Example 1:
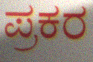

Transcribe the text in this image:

ಪ್ರಕರ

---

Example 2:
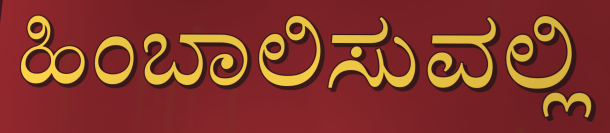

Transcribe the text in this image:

ಹಿಂಬಾಲಿಸುವಲ್ಲಿ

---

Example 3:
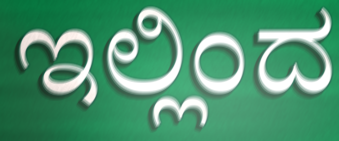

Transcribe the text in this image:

ಇಲ್ಲಿಂದ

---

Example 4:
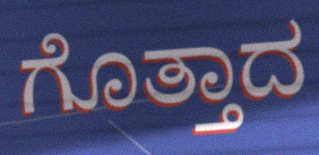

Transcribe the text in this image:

ಗೊತ್ತಾದ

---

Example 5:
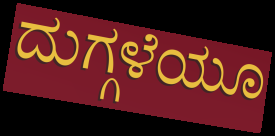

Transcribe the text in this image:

ದುಗ್ಗಳೆಯೂ